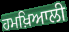
ਹਮਖ਼ਿਆਲੀ